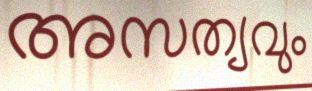
അസത്യവും